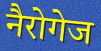
नैरोगेज